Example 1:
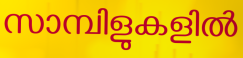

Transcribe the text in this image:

സാമ്പിളുകളിൽ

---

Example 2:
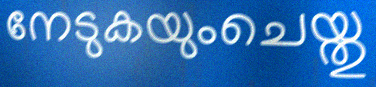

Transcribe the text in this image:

നേടുകയുംചെയ്തു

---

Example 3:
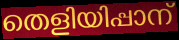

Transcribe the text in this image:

തെളിയിപ്പാന്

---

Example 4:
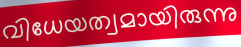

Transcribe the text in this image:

വിധേയത്വമായിരുന്നു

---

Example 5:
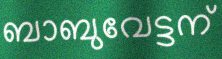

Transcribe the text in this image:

ബാബുവേട്ടന്